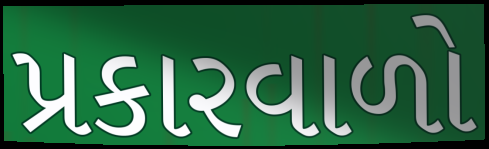
પ્રકારવાળો